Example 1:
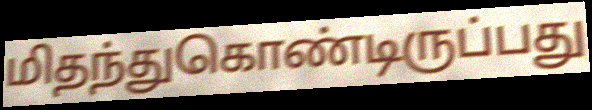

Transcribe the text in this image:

மிதந்துகொண்டிருப்பது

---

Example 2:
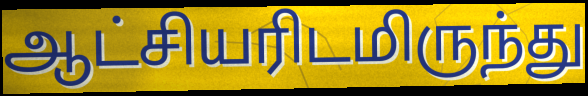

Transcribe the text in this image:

ஆட்சியரிடமிருந்து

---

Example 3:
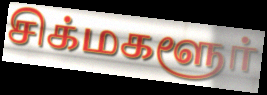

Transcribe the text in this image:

சிக்மகளூர்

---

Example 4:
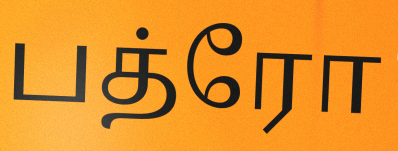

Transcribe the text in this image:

பத்ரோ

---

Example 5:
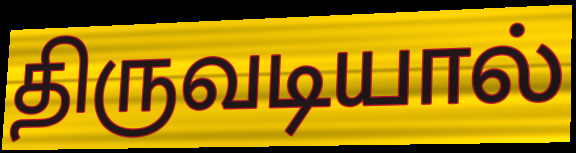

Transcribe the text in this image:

திருவடியால்